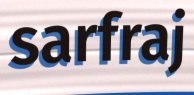
sarfraj